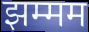
झम्मम